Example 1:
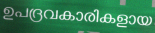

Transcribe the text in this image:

ഉപദ്രവകാരികളായ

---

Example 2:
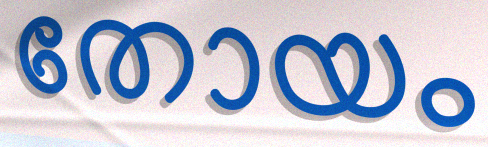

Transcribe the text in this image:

തോയം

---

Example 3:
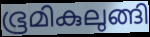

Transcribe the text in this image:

ഭൂമികുലുങ്ങി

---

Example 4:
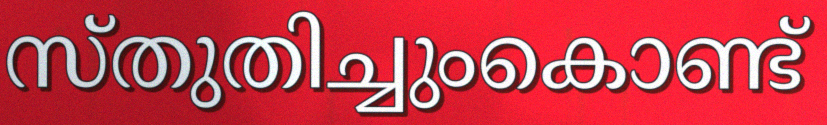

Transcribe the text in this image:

സ്തുതിച്ചുംകൊണ്ട്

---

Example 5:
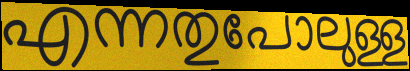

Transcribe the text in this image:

എന്നതുപോലുള്ള